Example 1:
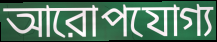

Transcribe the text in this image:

আরোপযোগ্য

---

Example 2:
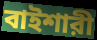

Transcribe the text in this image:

বাইশারী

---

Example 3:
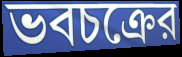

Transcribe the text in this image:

ভবচক্রের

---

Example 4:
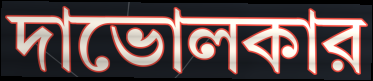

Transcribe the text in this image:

দাভোলকার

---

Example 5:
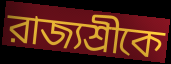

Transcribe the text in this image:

রাজ্যশ্রীকে